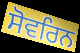
ਸੋਵਰਿਨ